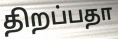
திறப்பதா